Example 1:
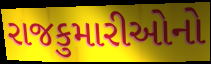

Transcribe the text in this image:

રાજકુમારીઓનો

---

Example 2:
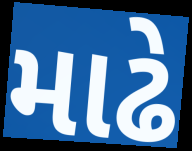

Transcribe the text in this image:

માઢે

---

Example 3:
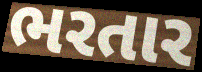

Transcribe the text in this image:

ભરતાર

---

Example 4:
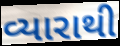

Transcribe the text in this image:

વ્યારાથી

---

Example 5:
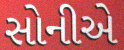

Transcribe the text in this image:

સોનીએ